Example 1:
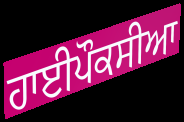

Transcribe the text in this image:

ਹਾਈਪੌਕਸੀਆ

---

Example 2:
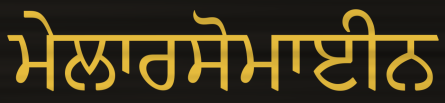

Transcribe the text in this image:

ਮੇਲਾਰਸੋਮਾਈਨ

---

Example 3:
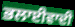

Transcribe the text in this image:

ਭਲਾਈਵਾਦੀ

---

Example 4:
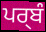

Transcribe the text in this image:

ਪਰ੍ਬੰ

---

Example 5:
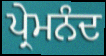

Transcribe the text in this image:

ਪ੍ਰੇਮਨੰਦ